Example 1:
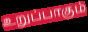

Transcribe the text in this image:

உறுப்பாகும்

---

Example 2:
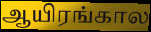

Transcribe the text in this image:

ஆயிரங்கால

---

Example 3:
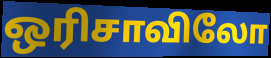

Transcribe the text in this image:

ஒரிசாவிலோ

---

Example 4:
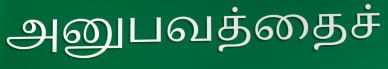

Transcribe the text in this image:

அனுபவத்தைச்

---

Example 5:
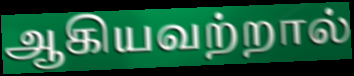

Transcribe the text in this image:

ஆகியவற்றால்